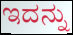
ಇದನ್ನು